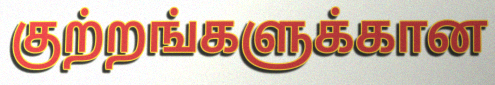
குற்றங்களுக்கான